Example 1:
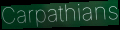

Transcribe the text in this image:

Carpathians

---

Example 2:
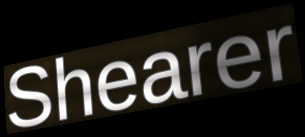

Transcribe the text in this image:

Shearer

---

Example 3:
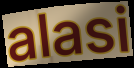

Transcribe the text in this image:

alasi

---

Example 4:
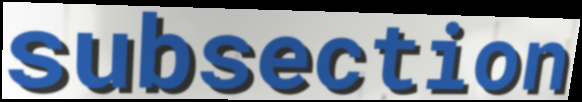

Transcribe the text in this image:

subsection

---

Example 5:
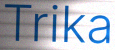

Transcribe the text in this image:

Trika